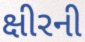
ક્ષીરની